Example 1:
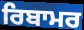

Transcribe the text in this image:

ਰਿਬਾਮਰ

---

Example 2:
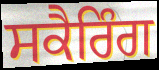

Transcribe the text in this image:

ਸਕੈਰਿੰਗ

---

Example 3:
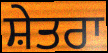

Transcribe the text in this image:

ਸ਼ੇਤਰਾ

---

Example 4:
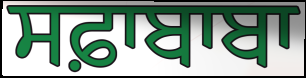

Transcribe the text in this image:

ਸਫ਼ਾਬਾਬਾ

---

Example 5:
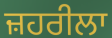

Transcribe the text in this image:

ਜ਼ਹਰੀਲਾ